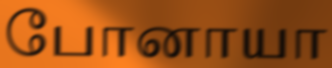
போனாயா